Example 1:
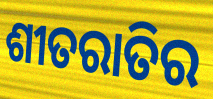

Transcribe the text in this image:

ଶୀତରାତିର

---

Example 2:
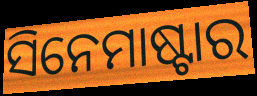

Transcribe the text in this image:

ସିନେମାଷ୍ଟାର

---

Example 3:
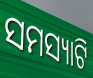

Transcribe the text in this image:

ସମସ୍ୟାଟି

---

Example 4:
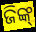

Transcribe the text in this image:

ଜିଙ୍କ୍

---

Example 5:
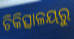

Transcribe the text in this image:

ଚିକିତ୍ସାଳୟରୁ